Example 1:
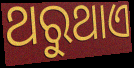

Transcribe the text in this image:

ଥରୁଥାଏ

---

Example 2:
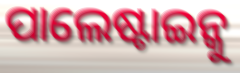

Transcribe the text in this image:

ପାଲେଷ୍ଟାଇନ୍କୁ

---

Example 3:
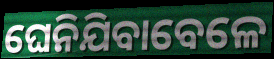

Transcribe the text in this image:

ଘେନିଯିବାବେଳେ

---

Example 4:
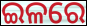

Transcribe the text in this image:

ଇଳରେ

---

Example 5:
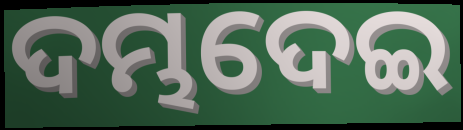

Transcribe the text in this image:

ଦମ୍ଭଦେଇ